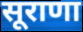
सूराणा